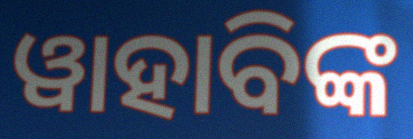
ୱାହାବିଙ୍କ